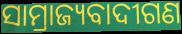
ସାମ୍ରାଜ୍ୟବାଦୀଗଣ